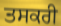
ਤਸਕਰੀ